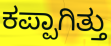
ಕಪ್ಪಾಗಿತ್ತು